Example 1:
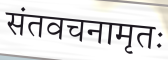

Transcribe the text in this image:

संतवचनामृतः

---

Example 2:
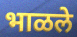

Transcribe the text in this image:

भाळले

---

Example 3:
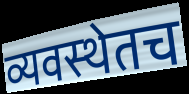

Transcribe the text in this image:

व्यवस्थेतच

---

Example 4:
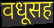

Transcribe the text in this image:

वधूसह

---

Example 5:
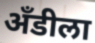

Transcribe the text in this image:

अँडीला